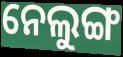
ନେଲୁଙ୍ଗ